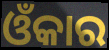
ଓଁକାର